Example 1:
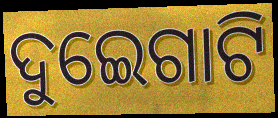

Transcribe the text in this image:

ଦୁଇେଗାଟି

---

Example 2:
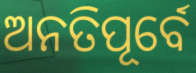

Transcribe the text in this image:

ଅନତିପୂର୍ବେ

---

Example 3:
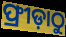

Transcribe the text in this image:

ଫ୍ରୀଡ଼ାଠୁ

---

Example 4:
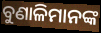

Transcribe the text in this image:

ବୁଣାଳିମାନଙ୍କ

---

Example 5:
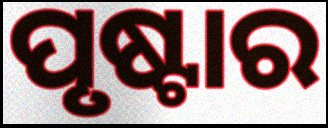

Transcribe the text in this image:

ପୃଷ୍ଟାର